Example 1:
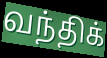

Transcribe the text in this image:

வந்திக்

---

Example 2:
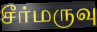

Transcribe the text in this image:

சீர்மருவு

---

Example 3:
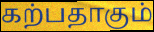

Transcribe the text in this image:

கற்பதாகும்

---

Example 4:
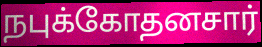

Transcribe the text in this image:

நபுக்கோதனசார்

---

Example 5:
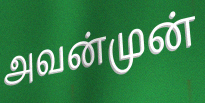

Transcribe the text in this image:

அவன்முன்